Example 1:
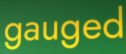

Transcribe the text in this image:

gauged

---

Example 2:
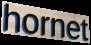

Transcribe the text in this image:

hornet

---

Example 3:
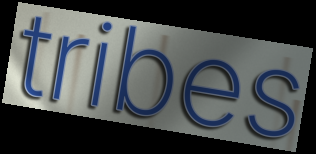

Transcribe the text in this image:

tribes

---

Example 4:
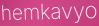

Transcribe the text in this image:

hemkavyo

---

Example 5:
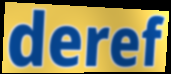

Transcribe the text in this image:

deref